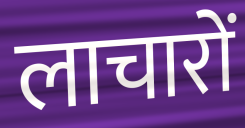
लाचारों